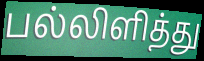
பல்லிளித்து